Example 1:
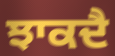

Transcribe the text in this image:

ਝਾਕਦੈ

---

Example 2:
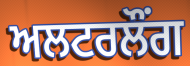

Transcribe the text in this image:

ਅਲਟਰਲੌਂਗ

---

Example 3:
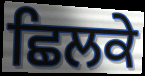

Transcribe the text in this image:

ਛਿਲਕੇ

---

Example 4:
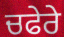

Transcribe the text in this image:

ਚਫੇਰੇ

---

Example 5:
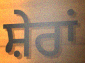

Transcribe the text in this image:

ਸ਼ੇਰਾਂ